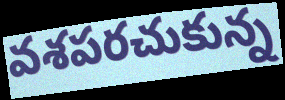
వశపరచుకున్న